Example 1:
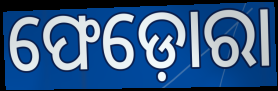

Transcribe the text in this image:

ଫେଡ଼ୋରା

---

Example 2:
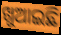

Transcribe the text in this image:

ଖୁଆଇଛି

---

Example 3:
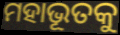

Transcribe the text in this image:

ମହାଭୂତକୁ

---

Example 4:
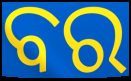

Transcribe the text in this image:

ବର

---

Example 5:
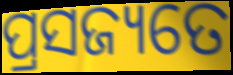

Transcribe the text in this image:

ପ୍ରସଜ୍ୟତେ